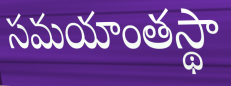
సమయాంతస్థా